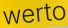
werto